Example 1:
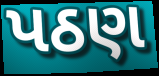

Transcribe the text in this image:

પઠણ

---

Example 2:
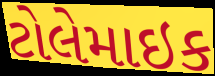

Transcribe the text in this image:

ટોલેમાઇક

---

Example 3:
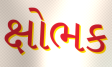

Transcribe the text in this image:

ક્ષોભક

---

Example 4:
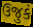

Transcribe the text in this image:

ઉજુકં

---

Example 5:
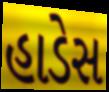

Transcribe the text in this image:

હાડેસ